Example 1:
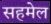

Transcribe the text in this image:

सहमेल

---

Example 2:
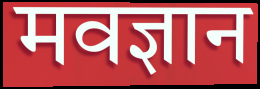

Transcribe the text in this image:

मवज्ञान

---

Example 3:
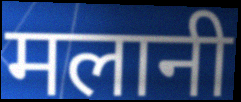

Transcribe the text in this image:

मलानी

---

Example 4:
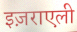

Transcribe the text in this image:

इज़राएली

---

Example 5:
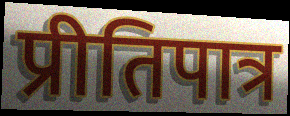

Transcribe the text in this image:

प्रीतिपात्र